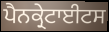
ਪੈਨਕ੍ਰੇਟਾਈਟਸ